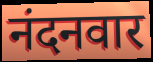
नंदनवार